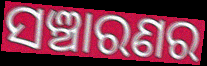
ସଞ୍ଚାରଣର